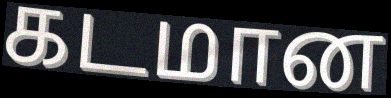
கடமான